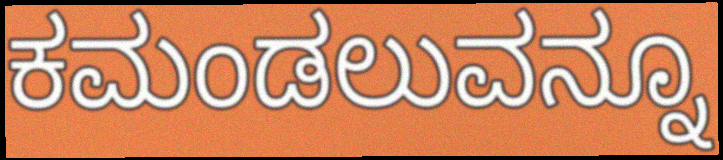
ಕಮಂಡಲುವನ್ನೂ